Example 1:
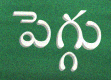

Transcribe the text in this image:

పెగ్గు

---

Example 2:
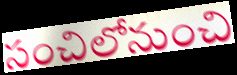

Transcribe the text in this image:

సంచిలోనుంచి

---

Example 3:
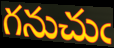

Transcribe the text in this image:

గనుచుఁ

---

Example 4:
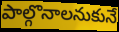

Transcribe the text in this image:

పాల్గొనాలనుకునే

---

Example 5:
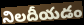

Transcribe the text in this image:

నిలదీయడం